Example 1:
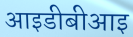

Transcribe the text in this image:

आइडीबीआइ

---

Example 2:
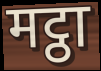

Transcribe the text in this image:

मट्ठा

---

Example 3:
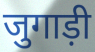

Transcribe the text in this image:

जुगाड़ी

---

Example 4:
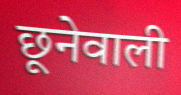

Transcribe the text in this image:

छूनेवाली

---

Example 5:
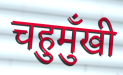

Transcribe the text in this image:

चहुमुँखी